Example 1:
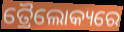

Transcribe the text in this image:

ତ୍ରୈଲୋକ୍ୟରେ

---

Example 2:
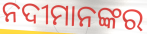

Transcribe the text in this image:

ନଦୀମାନଙ୍କର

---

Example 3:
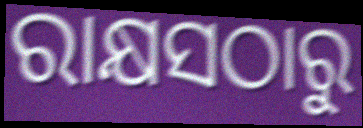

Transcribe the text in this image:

ରାକ୍ଷସଠାରୁ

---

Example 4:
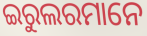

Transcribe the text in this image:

ଇରୁଲରମାନେ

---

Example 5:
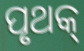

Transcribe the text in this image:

ପୃଥକ୍